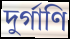
দুর্গাণি